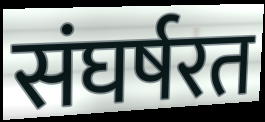
संघर्षरत